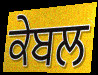
ਕੇਬਲ